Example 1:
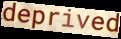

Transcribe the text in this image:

deprived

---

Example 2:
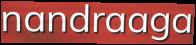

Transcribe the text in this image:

nandraaga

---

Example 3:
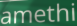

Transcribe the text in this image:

amethi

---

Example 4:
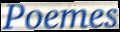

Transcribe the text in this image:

Poemes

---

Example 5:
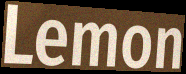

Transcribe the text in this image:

Lemon